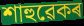
শাহুৱেকৰ